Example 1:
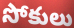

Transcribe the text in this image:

సోకులు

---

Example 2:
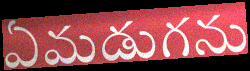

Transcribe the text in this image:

ఏమడుగను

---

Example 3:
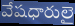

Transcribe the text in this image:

వేషధారులై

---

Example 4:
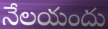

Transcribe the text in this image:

నేలయందు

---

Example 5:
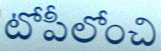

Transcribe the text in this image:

టోపీలోంచి